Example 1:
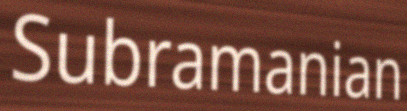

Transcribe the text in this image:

Subramanian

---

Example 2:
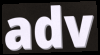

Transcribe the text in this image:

adv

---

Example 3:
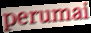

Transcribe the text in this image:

perumai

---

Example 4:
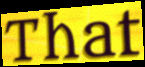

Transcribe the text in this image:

That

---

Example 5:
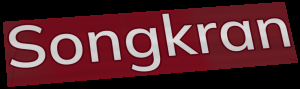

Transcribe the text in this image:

Songkran